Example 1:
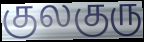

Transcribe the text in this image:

குலகுரு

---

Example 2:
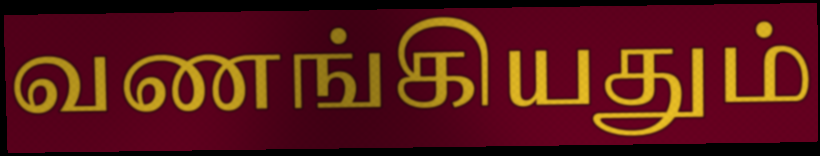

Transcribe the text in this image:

வணங்கியதும்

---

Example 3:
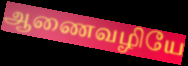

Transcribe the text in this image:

ஆணைவழியே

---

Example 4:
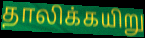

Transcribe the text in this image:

தாலிக்கயிறு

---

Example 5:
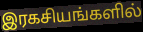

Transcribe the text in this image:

இரகசியங்களில்